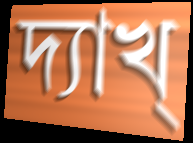
দ্যাখ্